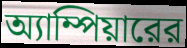
অ্যাম্পিয়ারের